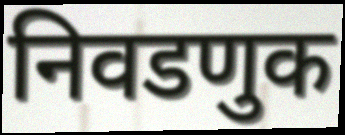
निवडणुक